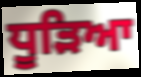
ਧੂੜਿਆ